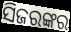
ସିଜରଙ୍କର